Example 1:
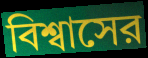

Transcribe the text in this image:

বিশ্বাসের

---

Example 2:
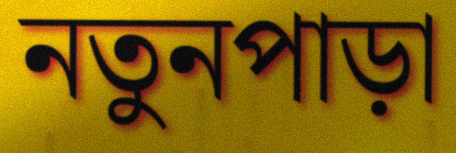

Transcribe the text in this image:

নতুনপাড়া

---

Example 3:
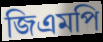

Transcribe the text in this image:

জিএমপি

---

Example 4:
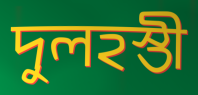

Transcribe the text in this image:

দুলহস্তী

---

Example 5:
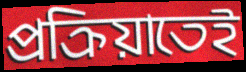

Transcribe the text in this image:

প্রক্রিয়াতেই